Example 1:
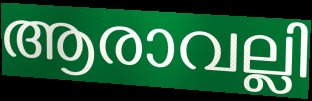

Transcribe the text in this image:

ആരാവല്ലി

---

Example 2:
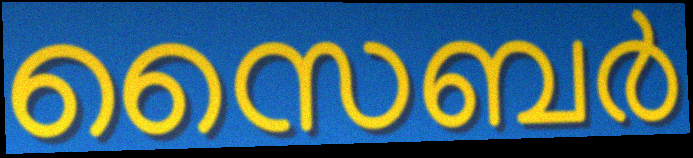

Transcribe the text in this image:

സൈബർ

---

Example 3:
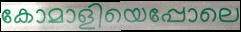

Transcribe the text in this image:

കോമാളിയെപ്പോലെ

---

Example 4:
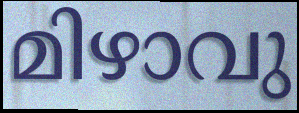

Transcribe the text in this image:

മിഴാവു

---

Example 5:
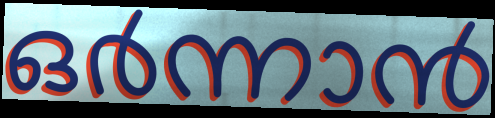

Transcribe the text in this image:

ഒർന്നാൻ